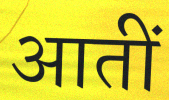
आतीं